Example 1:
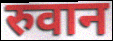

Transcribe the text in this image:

रुवान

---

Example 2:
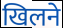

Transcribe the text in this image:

खिलने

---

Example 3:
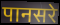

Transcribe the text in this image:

पानसरे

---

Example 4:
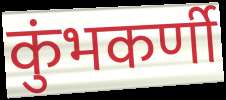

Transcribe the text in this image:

कुंभकर्णी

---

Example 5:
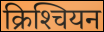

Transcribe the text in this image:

क्रिश्‍चियन